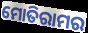
ମୋତିରାମର